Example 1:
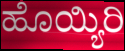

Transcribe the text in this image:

ಹೊಯ್ಯಿರಿ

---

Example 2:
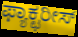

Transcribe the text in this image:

ಫ್ಯಾಕ್ಟರೀಸ್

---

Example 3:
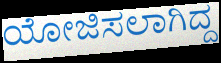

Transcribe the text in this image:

ಯೋಜಿಸಲಾಗಿದ್ದ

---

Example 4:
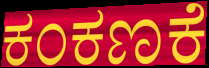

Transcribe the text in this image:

ಕಂಕಣಕೆ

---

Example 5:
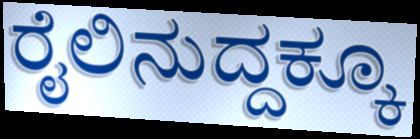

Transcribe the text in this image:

ರೈಲಿನುದ್ದಕ್ಕೂ